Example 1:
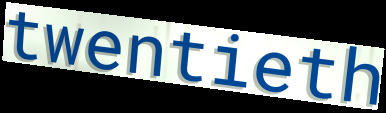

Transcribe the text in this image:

twentieth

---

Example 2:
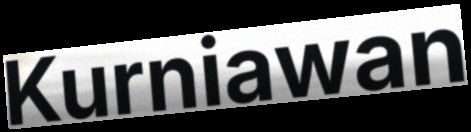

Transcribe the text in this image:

Kurniawan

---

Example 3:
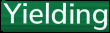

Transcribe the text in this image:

Yielding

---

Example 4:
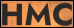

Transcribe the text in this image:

HMC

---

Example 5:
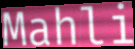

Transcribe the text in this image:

Mahli